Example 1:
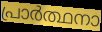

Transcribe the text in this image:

പ്രാർത്ഥനാ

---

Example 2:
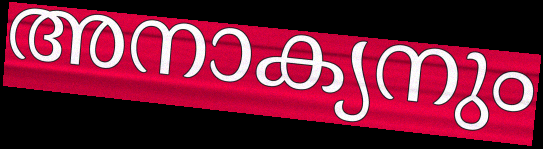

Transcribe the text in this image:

അനാക്യനും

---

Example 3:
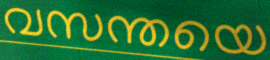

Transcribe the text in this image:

വസന്തയെ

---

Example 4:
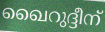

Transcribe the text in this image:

ഖൈറുദ്ദീന്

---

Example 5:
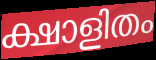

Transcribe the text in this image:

ക്ഷാളിതം